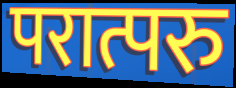
परात्परु